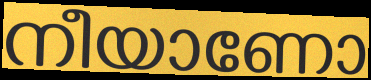
നീയാണോ